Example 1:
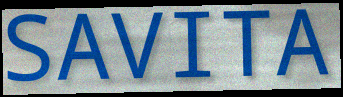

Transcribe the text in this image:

SAVITA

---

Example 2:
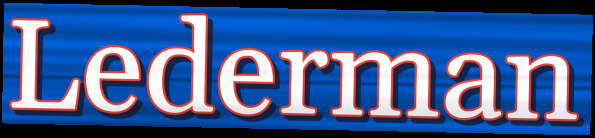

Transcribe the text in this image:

Lederman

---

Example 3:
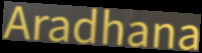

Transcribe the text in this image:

Aradhana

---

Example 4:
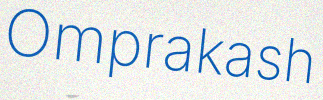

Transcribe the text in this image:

Omprakash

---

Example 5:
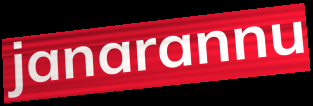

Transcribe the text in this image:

janarannu